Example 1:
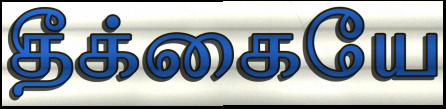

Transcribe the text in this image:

தீக்கையே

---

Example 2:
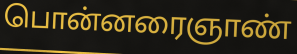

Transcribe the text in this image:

பொன்னரைஞாண்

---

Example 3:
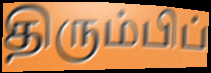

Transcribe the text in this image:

திரும்பிப்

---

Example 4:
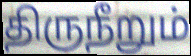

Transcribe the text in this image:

திருநீறும்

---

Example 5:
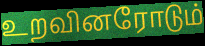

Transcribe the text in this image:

உறவினரோடும்